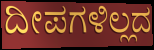
ದೀಪಗಳಿಲ್ಲದ